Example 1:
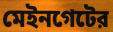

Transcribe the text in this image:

মেইনগেটের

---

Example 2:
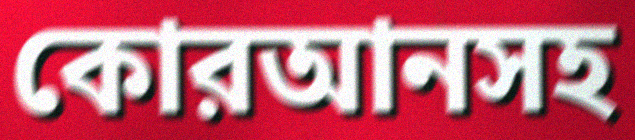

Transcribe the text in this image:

কোরআনসহ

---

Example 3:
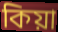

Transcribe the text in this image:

কিয়া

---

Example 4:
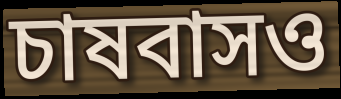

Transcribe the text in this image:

চাষবাসও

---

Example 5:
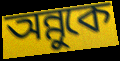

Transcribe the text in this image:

অন্নুকে